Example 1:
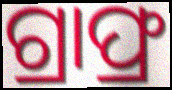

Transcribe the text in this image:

ଗ୍ରାଫ୍ର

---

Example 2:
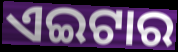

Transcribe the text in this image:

ଏଇଟାର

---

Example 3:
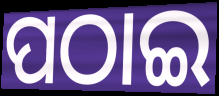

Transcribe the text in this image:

ପଠାଇ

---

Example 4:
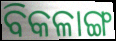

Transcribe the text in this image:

ବିକଳାଙ୍ଗ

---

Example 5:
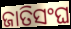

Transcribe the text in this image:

ଜାତିସଂଘ